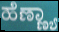
ಹೆಣ್ಣ್ಯಾ